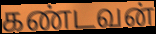
கண்டவன்